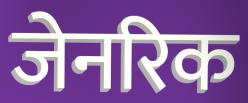
जेनरिक